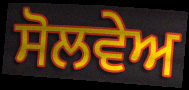
ਸੋਲਵੇਅ